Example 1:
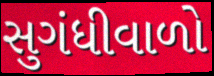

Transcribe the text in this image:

સુગંધીવાળો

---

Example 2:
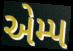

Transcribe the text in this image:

એમ્પ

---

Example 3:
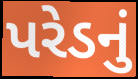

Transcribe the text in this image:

પરેડનું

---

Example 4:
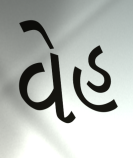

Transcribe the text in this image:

વેહ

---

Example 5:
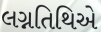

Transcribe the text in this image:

લગ્નતિથિએ